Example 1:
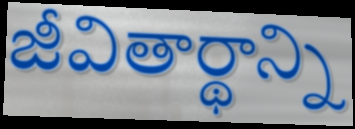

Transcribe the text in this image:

జీవితార్థాన్ని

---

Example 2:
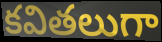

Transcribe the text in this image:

కవితలుగా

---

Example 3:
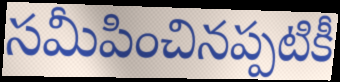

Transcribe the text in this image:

సమీపించినప్పటికీ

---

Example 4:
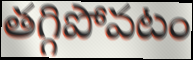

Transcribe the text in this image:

తగ్గిపోవటం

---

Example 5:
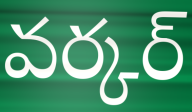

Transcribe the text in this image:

వర్కర్